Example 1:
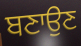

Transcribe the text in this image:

ਬਣਾਉਣ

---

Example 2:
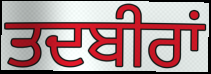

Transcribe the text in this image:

ਤਦਬੀਰਾਂ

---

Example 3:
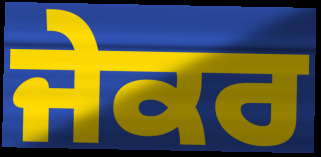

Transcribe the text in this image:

ਜੇਕਰ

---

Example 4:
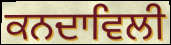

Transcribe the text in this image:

ਕਨਦਾਵਿਲੀ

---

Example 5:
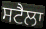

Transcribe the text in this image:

ਸਟੈਲਾ